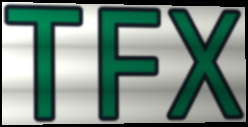
TFX